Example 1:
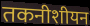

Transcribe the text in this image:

तकनीशीयन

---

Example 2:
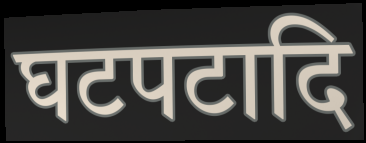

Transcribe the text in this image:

घटपटादि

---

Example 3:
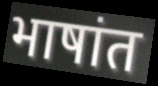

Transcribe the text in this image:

भाषांत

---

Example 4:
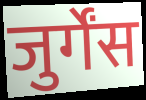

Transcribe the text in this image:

जुर्गेंस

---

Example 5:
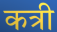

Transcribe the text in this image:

कत्री